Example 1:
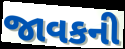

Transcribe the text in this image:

જાવકની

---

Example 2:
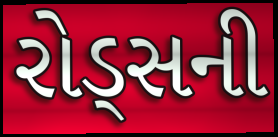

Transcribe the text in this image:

રોડ્સની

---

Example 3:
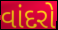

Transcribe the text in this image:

વાંદરો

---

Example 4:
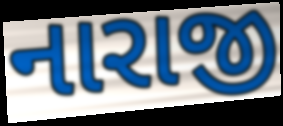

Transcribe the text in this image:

નારાજી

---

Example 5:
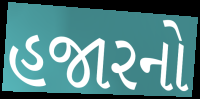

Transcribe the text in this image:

હજારનો